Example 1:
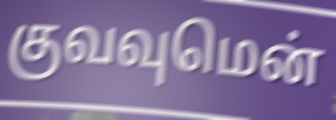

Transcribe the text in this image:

குவவுமென்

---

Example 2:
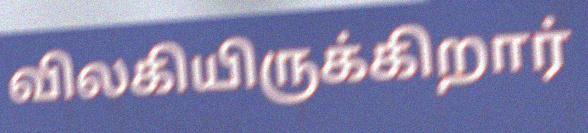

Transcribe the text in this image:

விலகியிருக்கிறார்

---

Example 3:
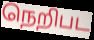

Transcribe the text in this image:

நெறிபட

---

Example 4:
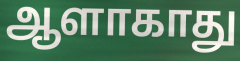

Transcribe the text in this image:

ஆளாகாது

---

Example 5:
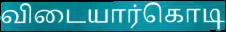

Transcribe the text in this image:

விடையார்கொடி